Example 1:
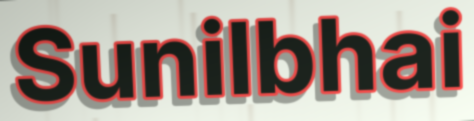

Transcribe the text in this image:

Sunilbhai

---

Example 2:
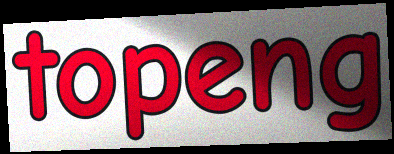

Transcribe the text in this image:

topeng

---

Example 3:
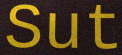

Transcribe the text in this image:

Sut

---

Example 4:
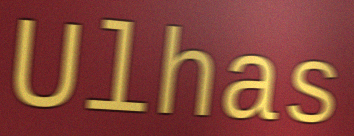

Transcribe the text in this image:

Ulhas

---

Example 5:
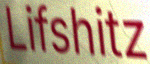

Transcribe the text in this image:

Lifshitz